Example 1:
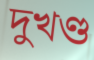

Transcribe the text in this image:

দুখণ্ড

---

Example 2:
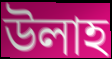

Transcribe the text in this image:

উলাহ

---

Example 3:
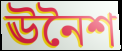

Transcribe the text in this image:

ঊনৈশ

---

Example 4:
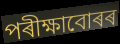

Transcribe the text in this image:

পৰীক্ষাবোৰৰ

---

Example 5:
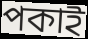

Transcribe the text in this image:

পকাই